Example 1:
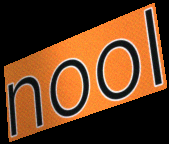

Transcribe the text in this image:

nool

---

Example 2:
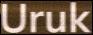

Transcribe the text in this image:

Uruk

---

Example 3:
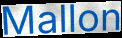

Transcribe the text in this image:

Mallon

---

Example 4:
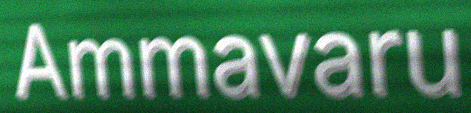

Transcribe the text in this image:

Ammavaru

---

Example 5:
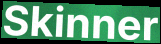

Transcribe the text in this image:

Skinner